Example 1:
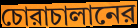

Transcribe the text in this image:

চোরাচালানের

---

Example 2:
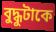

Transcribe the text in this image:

বুদ্ধুটাকে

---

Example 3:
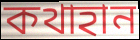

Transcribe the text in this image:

কথাহান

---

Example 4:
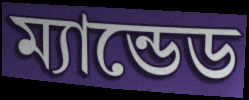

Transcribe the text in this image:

ম্যান্ডেড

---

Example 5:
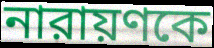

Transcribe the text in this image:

নারায়ণকে